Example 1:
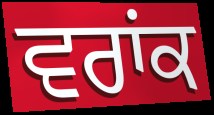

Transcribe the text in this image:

ਵਰਾਂਕ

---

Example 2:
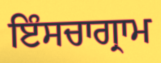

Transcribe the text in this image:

ਇੰਸਚਾਗ੍ਰਾਮ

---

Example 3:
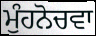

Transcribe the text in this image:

ਮੁੰਹਨੋਚਵਾ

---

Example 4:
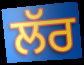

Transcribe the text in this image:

ਲੱਰ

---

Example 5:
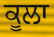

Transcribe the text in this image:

ਕੂਲਾ